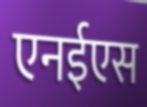
एनईएस